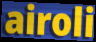
airoli